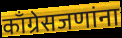
काँग्रेसजणांना